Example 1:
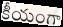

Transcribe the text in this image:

కీయంగా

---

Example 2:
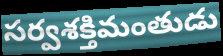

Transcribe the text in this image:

సర్వశక్తిమంతుడు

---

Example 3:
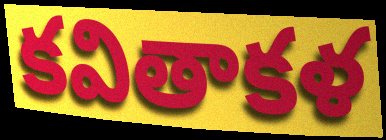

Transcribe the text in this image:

కవితాకళ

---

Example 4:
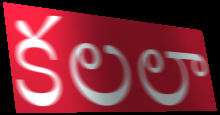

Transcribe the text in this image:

కలలా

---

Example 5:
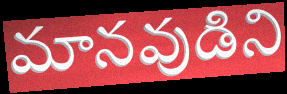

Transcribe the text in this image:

మానవుడిని